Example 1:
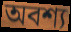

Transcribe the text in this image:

অবশ্য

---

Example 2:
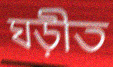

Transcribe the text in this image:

ঘড়ীত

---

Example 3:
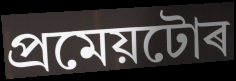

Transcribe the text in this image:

প্ৰমেয়টোৰ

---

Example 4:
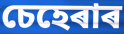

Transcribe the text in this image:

চেহেৰাৰ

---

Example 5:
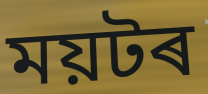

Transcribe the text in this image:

ময়টৰ